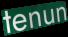
tenun